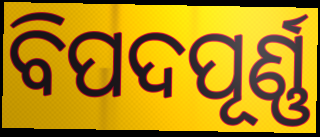
ବିପଦପୂର୍ଣ୍ଣ